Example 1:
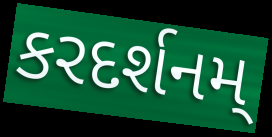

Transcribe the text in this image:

કરદર્શનમ્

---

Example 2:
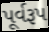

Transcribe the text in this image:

પૂર્વરૂપ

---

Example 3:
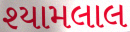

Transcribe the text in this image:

શ્યામલાલ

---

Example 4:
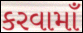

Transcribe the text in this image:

કરવામાઁ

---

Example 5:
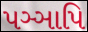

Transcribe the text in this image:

પઞ્ઞાપિ